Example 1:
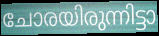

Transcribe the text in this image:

ചോരയിരുന്നിട്ടാ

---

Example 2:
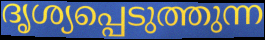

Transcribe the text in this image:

ദൃശ്യപ്പെടുത്തുന്ന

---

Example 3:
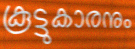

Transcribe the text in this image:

കൂട്ടുകാരനും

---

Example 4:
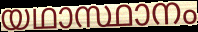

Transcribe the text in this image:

യഥാസ്ഥാനം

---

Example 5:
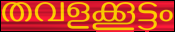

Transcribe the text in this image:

തവളക്കൂട്ടം